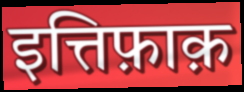
इत्तिफ़ाक़